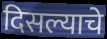
दिसल्याचे